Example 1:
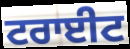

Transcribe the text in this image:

ਟਰਾਈਟ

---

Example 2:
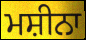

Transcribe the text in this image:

ਮਸ਼ੀਨਾ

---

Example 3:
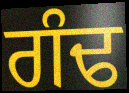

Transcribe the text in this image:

ਗੰਢ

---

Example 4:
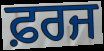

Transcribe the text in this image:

ਫ਼ਰਜ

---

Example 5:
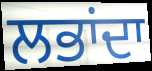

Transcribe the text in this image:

ਲਭਾਂਦਾ